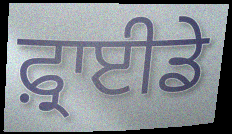
ਫ਼੍ਰਾਈਡੇ